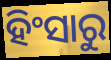
ହିଂସାରୁ